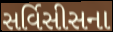
સર્વિસીસના